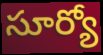
సూర్యో